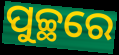
ପୁଚ୍ଛରେ